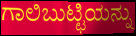
ಗಾಲಿಬುಟ್ಟಿಯನ್ನು